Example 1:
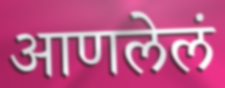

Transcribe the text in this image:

आणलेलं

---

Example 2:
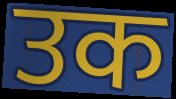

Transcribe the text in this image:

उक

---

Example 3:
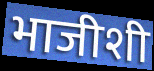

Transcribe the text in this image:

भाजीशी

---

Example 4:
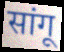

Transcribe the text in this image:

सांगू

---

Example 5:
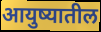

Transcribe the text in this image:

आयुष्यातील